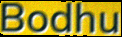
Bodhu